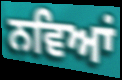
ਨਵਿਆਂ